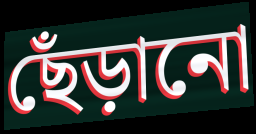
ছেঁড়ানো